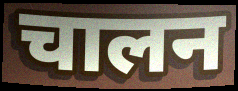
चालन